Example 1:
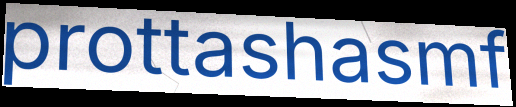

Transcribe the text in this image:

prottashasmf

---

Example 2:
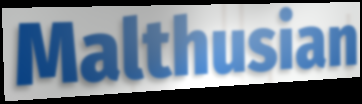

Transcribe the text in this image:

Malthusian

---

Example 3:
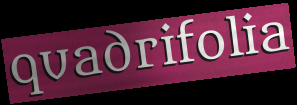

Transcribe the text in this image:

quadrifolia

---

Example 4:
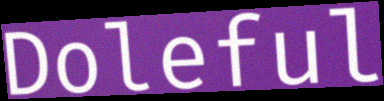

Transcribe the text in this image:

Doleful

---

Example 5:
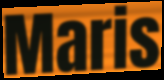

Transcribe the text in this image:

Maris